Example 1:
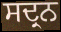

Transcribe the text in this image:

ਸਦ੍ਰਨ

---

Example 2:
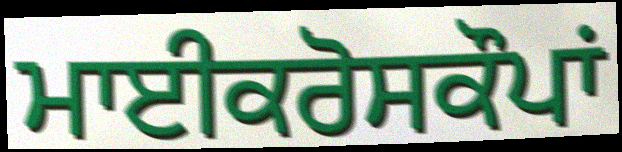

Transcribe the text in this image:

ਮਾਈਕਰੋਸਕੌਪਾਂ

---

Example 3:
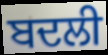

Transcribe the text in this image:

ਬਦਲੀ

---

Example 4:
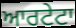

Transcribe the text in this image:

ਆਰਟੇਟਾ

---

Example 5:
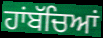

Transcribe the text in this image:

ਹਾਂਬੱਚਿਆਂ